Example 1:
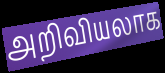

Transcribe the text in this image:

அறிவியலாக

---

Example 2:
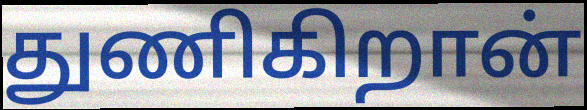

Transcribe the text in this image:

துணிகிறான்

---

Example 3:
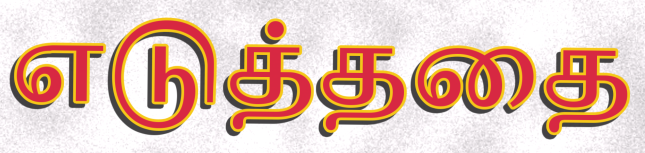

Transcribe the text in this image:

எடுத்ததை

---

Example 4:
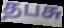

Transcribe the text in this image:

தபசு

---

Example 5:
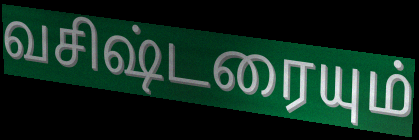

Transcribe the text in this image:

வசிஷ்டரையும்